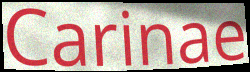
Carinae